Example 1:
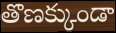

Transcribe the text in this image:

తొణక్కుండా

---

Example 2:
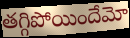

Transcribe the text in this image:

తగ్గిపోయిందేమో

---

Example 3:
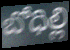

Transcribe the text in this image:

బోధిల్లి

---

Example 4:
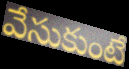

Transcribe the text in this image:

వేసుకుంటే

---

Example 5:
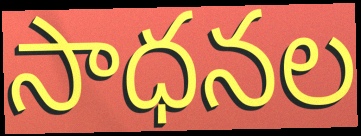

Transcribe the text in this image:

సాధనల